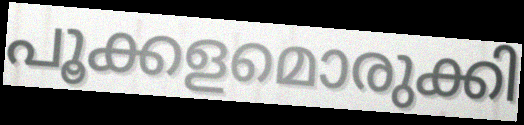
പൂക്കളമൊരുക്കി